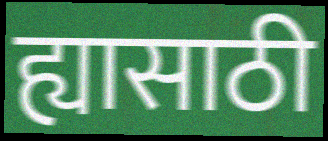
ह्यासाठी